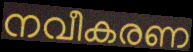
നവീകരണ